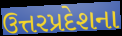
ઉત્તરપ્રદેશના